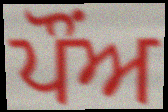
ਪੌਂਅ